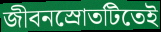
জীবনস্রোতটিতেই